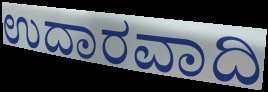
ಉದಾರವಾದಿ